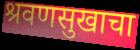
श्रवणसुखाचा